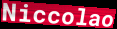
Niccolao